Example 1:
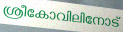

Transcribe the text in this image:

ശ്രീകോവിലിനോട്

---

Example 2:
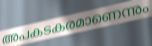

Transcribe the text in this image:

അപകടകരമാണെന്നും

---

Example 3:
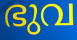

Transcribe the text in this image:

ഭുവ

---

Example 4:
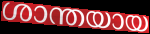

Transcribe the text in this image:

ശാന്തയായ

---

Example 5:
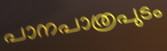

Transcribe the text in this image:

പാനപാത്രപുടം